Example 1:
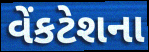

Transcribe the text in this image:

વેંકટેશના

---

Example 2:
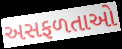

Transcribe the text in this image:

અસફળતાઓ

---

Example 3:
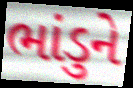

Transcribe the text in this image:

ભાંડુને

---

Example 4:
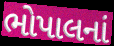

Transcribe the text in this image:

ભોપાલનાં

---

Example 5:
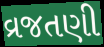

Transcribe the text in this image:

વ્રજતણી